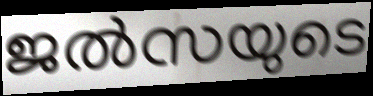
ജൽസയുടെ